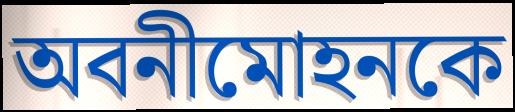
অবনীমোহনকে